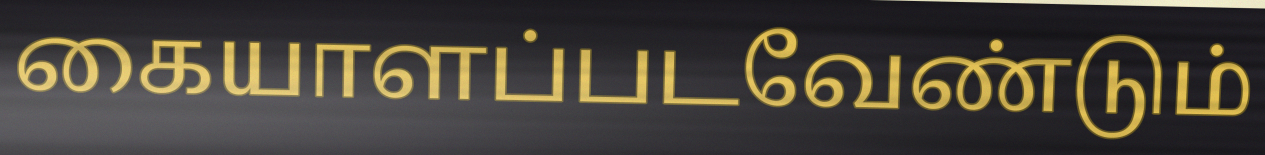
கையாளப்படவேண்டும்